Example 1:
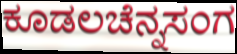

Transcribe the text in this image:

ಕೂಡಲಚೆನ್ನಸಂಗ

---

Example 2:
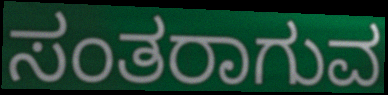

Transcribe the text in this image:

ಸಂತರಾಗುವ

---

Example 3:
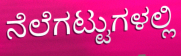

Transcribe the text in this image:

ನೆಲೆಗಟ್ಟುಗಳಲ್ಲಿ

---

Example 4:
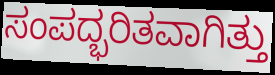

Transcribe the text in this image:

ಸಂಪದ್ಭರಿತವಾಗಿತ್ತು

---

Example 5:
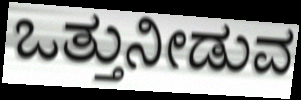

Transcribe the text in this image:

ಒತ್ತುನೀಡುವ